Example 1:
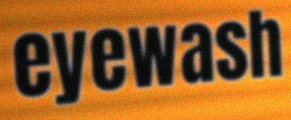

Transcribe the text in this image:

eyewash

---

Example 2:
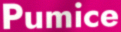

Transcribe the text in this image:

Pumice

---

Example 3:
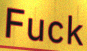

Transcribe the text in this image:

Fuck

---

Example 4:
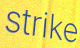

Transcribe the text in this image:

strike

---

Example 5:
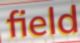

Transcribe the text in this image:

field